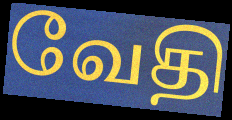
வேதி